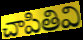
చాపితివి